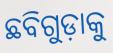
ଛବିଗୁଡ଼ାକୁ